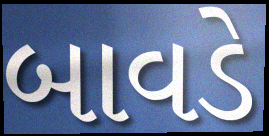
બાવડે